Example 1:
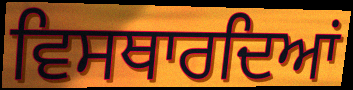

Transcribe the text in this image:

ਵਿਸਥਾਰਦਿਆਂ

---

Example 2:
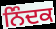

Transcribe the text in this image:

ਨਿੰਦਕ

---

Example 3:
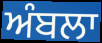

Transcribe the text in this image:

ਅੰਬਲਾ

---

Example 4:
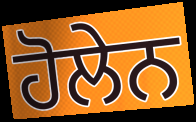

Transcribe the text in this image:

ਹੋਲੇਨ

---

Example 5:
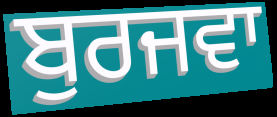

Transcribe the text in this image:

ਬੁਰਜਵਾ